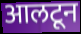
आलटून